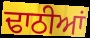
ਢਾਠੀਆਂ